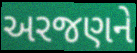
અરજણને